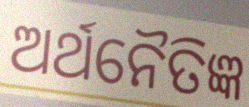
ଅର୍ଥନୈତିଜ୍ଞ